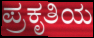
ಪ್ರಕೃತಿಯ